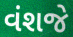
વંશજે